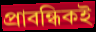
প্রাবন্ধিকই